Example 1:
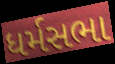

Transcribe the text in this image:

ધર્મસભા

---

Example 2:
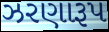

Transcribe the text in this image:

ઝરણારૂપ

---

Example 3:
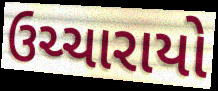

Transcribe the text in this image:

ઉચ્ચારાયો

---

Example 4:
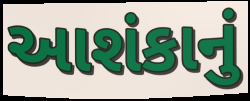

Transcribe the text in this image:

આશંકાનું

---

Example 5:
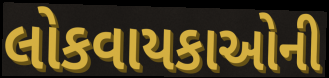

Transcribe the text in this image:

લોકવાયકાઓની